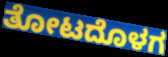
ತೋಟದೊಳಗ